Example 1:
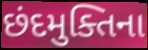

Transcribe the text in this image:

છંદમુક્તિના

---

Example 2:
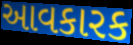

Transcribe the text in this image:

આવકારક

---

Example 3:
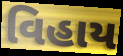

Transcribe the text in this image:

વિહાય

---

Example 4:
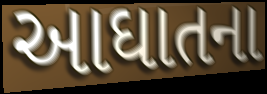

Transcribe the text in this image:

આઘાતના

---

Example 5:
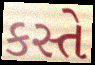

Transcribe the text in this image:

કસ્તે